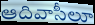
ఆదివాసీలూ